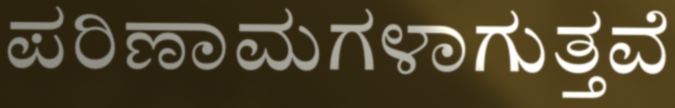
ಪರಿಣಾಮಗಳಾಗುತ್ತವೆ